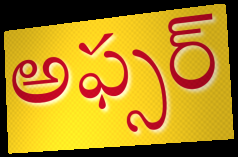
అఫ్సర్